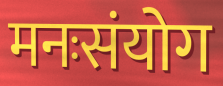
मनःसंयोग